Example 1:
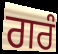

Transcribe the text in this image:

ਗਰੰ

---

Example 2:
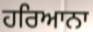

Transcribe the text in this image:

ਹਰਿਆਨਾ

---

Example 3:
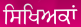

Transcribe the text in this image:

ਸਿਖਿਅਕਾਂ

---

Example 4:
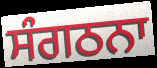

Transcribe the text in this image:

ਸੰਗਠਨਾ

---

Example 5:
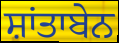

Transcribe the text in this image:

ਸ਼ਾਂਤਾਬੇਨ